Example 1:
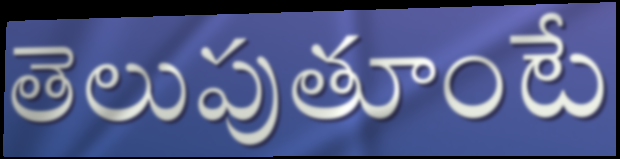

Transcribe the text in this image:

తెలుపుతూంటే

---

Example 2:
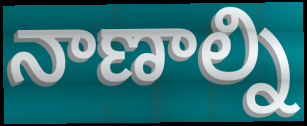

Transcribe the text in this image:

నాణాల్ని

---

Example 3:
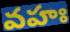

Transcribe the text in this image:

వహః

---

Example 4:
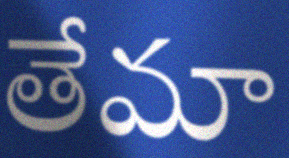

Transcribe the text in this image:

తేమా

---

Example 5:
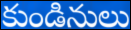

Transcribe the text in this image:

కుండినులు